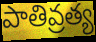
పాతివ్రత్య